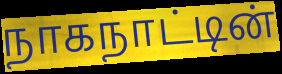
நாகநாட்டின்